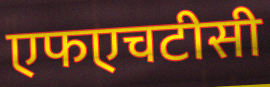
एफएचटीसी